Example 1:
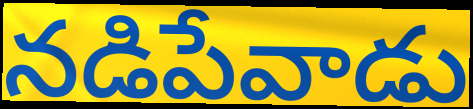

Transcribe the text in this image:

నడిపేవాడు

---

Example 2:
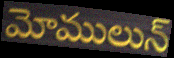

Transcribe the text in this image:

మోములున్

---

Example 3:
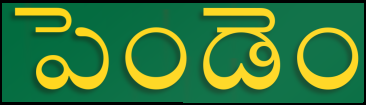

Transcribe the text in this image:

పెండెం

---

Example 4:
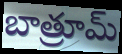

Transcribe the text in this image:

బాత్రూమ్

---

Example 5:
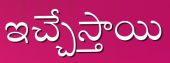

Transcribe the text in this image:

ఇచ్చేస్తాయి